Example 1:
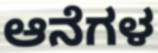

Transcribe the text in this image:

ಆನೆಗಳ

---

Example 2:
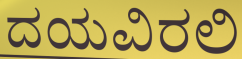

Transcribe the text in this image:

ದಯವಿರಲಿ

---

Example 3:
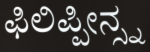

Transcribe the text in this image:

ಫಿಲಿಪ್ಪೀನ್ಸ್ನ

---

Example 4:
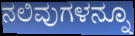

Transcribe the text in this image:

ನಲಿವುಗಳನ್ನೂ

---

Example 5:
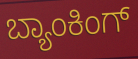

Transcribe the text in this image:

ಬ್ಯಾಂಕಿಂಗ್